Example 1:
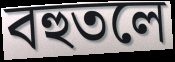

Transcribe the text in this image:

বহুতলে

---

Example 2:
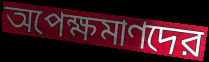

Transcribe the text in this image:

অপেক্ষমাণদের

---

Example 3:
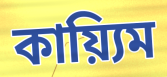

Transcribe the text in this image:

কায়্যিম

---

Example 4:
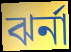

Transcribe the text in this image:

ঝর্না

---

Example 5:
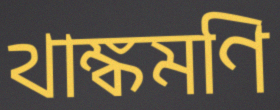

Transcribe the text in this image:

থাঙ্কমণি